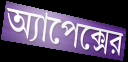
অ্যাপেক্সের